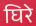
घिरे